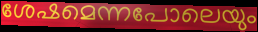
ശേഷമെന്നപോലെയും